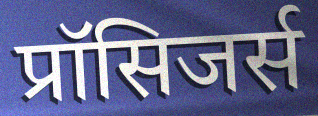
प्रॉसिजर्स